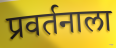
प्रवर्तनाला